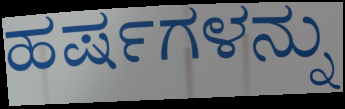
ಹರ್ಷಗಳನ್ನು